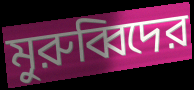
মুরুব্বিদের